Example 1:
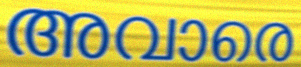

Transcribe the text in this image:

അവാരെ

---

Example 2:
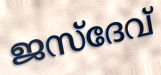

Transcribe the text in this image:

ജസ്ദേവ്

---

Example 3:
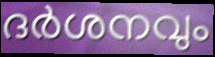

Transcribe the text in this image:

ദർശനവും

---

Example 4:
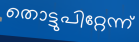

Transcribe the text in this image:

തൊട്ടുപിറ്റേന്ന്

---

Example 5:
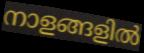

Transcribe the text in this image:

നാളങ്ങളിൽ